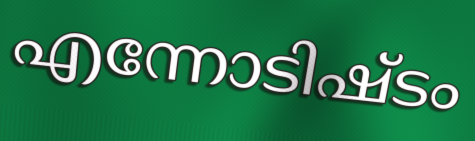
എന്നോടിഷ്ടം